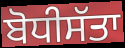
ਬੋਧੀਸੱਤਾ